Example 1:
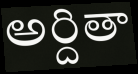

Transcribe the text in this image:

అర్దితా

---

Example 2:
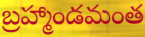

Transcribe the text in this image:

బ్రహ్మాండమంత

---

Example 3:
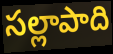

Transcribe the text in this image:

సల్లాపాది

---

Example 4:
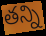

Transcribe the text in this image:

తన్ని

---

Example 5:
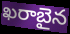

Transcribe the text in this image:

ఖరాబైన